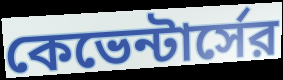
কেভেন্টার্সের